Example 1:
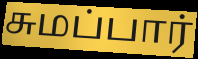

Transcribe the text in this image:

சுமப்பார்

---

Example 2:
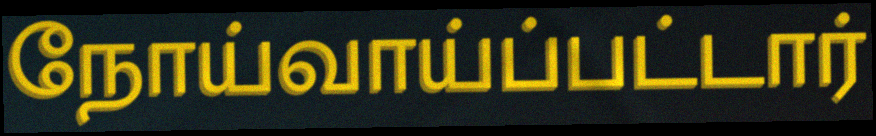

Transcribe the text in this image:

நோய்வாய்ப்பட்டார்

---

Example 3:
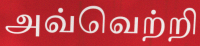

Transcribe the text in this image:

அவ்வெற்றி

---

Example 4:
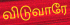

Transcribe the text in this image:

விடுவாரே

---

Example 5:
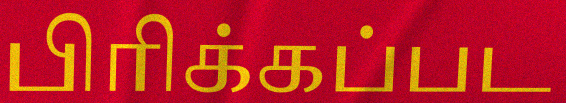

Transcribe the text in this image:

பிரிக்கப்பட